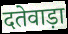
दतेवाड़ा